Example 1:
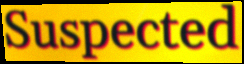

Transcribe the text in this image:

Suspected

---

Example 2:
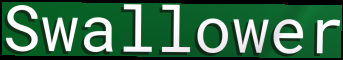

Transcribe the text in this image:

Swallower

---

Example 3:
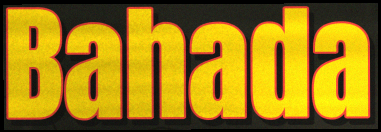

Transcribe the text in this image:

Bahada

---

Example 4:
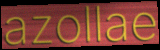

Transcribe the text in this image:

azollae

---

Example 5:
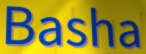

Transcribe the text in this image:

Basha